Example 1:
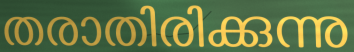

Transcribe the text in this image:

തരാതിരിക്കുന്നു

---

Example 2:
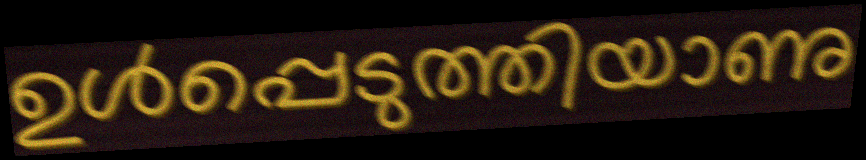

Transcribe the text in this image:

ഉൾപ്പെടുത്തിയാണു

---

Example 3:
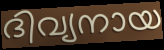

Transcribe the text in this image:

ദിവ്യനായ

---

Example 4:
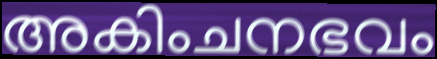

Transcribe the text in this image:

അകിംചനഭവം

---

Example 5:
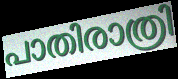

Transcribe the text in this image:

പാതിരാത്രി